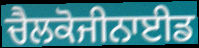
ਚੈਲਕੋਜੀਨਾਈਡ